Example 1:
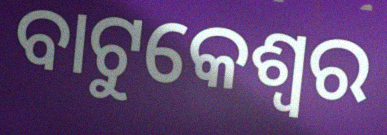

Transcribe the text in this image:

ବାଟୁକେଶ୍ୱର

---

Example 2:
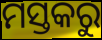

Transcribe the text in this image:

ମସ୍ତକରୁ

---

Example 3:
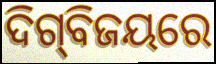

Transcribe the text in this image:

ଦିଗ୍‌ବିଜୟରେ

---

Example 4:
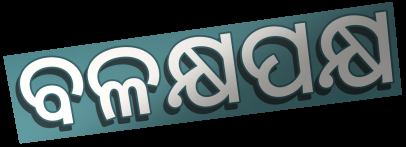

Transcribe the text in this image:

ବଳକ୍ଷପକ୍ଷ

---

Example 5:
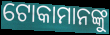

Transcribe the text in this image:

ଟୋକାମାନଙ୍କୁ